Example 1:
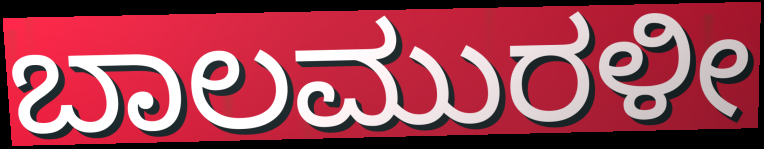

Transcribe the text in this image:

ಬಾಲಮುರಳೀ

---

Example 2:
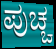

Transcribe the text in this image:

ಪುಚ್ಚ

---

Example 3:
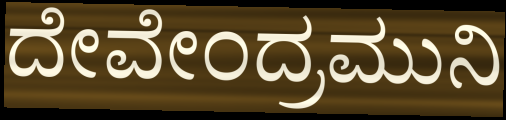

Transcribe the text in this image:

ದೇವೇಂದ್ರಮುನಿ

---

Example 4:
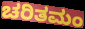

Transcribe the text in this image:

ಚರಿತಮಂ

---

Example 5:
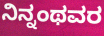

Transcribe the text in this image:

ನಿನ್ನಂಥವರ